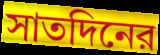
সাতদিনের